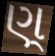
ણ્